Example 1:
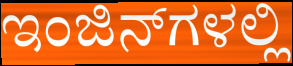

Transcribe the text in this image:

ಇಂಜಿನ್‌ಗಳಲ್ಲಿ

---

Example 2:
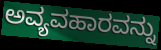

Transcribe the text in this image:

ಅವ್ಯವಹಾರವನ್ನು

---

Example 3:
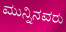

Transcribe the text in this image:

ಮುನ್ನಿನವರು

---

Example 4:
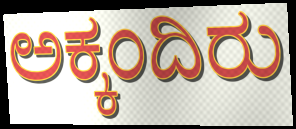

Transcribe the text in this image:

ಅಕ್ಕಂದಿರು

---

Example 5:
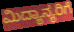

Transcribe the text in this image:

ಮಿದ್ಯಾನ್ಯರಿಗೆ